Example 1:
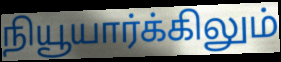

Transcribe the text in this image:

நியூயார்க்கிலும்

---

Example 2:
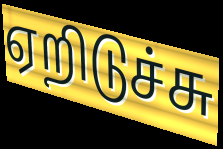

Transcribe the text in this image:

ஏறிடுச்சு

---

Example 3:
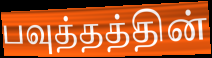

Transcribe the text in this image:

பவுத்தத்தின்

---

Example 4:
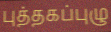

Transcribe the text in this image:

புத்தகப்புழு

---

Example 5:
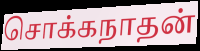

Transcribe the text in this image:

சொக்கநாதன்